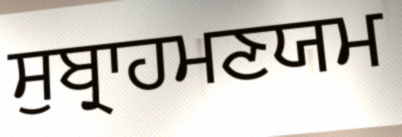
ਸੁਬ੍ਰਾਹਮਣਯਮ